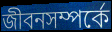
জীবনসম্পর্কে